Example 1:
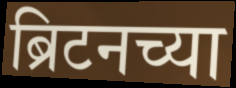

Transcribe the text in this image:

ब्रिटनच्या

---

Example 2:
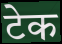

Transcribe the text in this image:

टेक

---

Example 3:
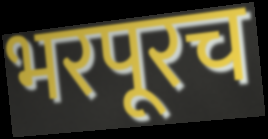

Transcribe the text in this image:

भरपूरच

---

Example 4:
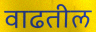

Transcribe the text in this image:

वाढतील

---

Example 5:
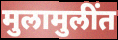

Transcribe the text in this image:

मुलामुलींत